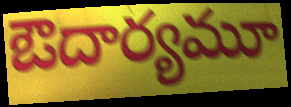
ఔదార్యమూ